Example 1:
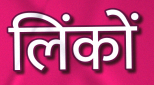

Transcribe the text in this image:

लिंकों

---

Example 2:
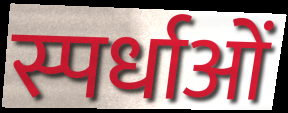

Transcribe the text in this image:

स्‍पर्धाओं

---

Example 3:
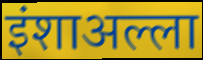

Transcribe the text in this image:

इंशाअल्ला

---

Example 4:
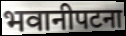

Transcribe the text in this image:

भवानीपटना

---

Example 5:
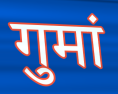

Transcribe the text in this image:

गुमां